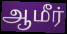
ஆமீர்